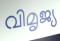
വിമൃജ്യ